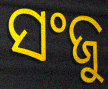
ସଂଜୁ